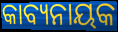
କାବ୍ୟନାୟକ